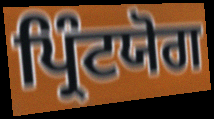
ਪ੍ਰਿੰਟਯੋਗ